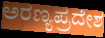
ಅರಣ್ಯಪ್ರದೇಶ